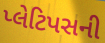
પ્લેટિપસની